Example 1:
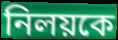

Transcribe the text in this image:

নিলয়কে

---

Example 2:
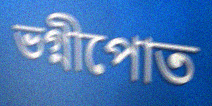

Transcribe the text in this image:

ভগ্নীপোত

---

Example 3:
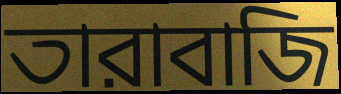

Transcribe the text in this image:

তারাবাজি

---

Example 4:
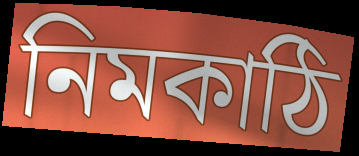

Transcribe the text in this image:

নিমকাঠি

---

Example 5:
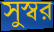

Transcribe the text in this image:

সুস্বর